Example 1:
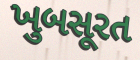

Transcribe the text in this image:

ખુબસૂરત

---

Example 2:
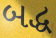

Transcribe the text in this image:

બદ્ધ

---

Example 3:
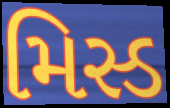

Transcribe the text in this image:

મિસ્ડ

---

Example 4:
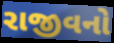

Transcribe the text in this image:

રાજીવનો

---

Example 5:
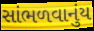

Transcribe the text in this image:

સાંભળવાનુંય